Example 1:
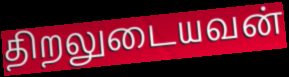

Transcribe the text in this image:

திறலுடையவன்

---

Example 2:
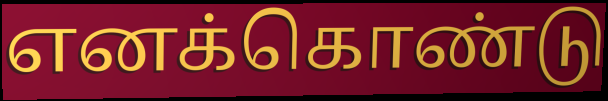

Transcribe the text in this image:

எனக்கொண்டு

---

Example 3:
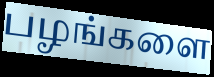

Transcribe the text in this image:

பழங்களை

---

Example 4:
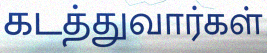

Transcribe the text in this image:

கடத்துவார்கள்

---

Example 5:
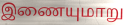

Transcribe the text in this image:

இணையுமாறு